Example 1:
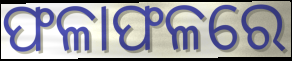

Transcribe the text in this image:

ଫଳାଫଳରେ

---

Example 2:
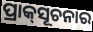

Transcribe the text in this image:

ପ୍ରାକ୍‌ସୂଚନାର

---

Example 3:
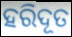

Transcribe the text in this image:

ହରିଦୂତ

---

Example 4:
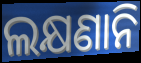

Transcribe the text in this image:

ଲକ୍ଷଣାନି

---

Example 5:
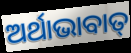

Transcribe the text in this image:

ଅର୍ଥାଭାବାତ୍